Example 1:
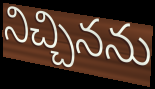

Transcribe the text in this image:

నిచ్చినను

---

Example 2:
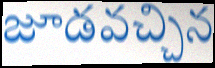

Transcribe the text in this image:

జూడవచ్చిన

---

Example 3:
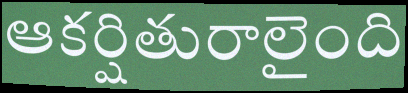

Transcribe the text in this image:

ఆకర్షితురాలైంది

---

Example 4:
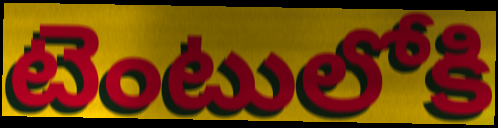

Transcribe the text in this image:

టెంటులోకి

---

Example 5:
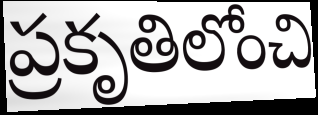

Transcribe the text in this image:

ప్రకృతిలోంచి